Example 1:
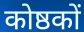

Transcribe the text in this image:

कोष्ठकों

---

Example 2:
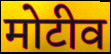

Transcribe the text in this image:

मोटीव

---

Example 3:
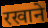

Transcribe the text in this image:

रखाने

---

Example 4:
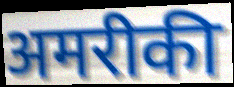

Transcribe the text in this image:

अमरीकी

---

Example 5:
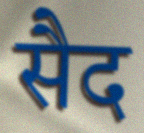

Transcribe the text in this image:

सैद